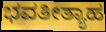
ಭವತೀತ್ಯಾಹ